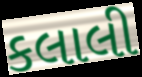
કલાલી